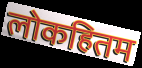
लोकहितम